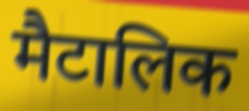
मैटालिक